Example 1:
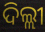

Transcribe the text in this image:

ଦିଲ୍ଲୀ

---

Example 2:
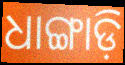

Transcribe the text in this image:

ଧାଙ୍ଗାଡ଼ି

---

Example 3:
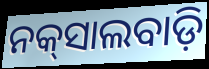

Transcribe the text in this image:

ନକ୍‌ସାଲବାଡ଼ି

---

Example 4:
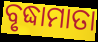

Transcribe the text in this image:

ବୃଦ୍ଧାମାତା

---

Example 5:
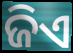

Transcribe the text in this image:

ଜିଏ